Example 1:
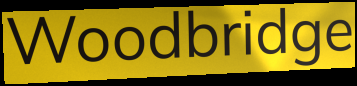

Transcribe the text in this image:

Woodbridge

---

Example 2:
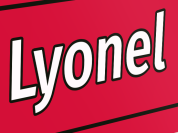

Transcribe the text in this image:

Lyonel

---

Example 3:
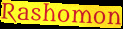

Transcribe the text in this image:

Rashomon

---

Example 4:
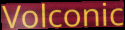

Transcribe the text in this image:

Volconic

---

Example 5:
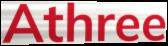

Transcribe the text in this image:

Athree